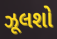
ઝૂલશો